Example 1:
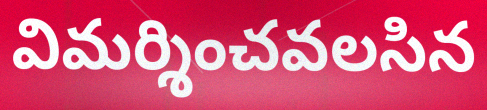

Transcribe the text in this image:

విమర్శించవలసిన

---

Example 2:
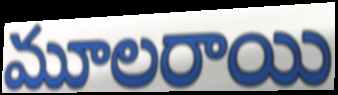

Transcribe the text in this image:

మూలరాయి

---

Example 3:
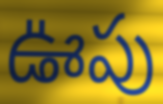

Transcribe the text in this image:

ఊపు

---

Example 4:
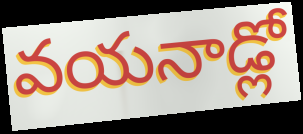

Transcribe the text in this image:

వయనాడ్లో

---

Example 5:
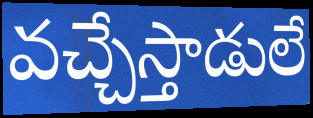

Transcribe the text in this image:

వచ్చేస్తాడులే